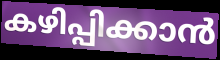
കഴിപ്പിക്കാൻ